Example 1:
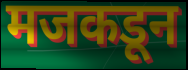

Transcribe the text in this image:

मजकडून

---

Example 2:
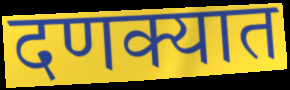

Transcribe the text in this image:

दणक्यात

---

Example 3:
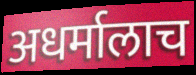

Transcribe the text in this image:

अधर्मालाच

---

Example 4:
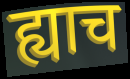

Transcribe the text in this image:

ह्याच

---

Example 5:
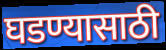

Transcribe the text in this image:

घडण्यासाठी